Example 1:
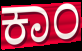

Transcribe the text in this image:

ಕಾಂ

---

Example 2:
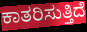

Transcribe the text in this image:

ಕಾತರಿಸುತ್ತಿದೆ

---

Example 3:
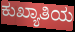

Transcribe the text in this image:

ಕುಖ್ಯಾತಿಯ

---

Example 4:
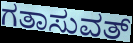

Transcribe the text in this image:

ಗತಾಸುವತ್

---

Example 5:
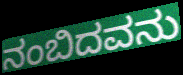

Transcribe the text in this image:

ನಂಬಿದವನು